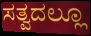
ಸತ್ವದಲ್ಲೂ